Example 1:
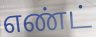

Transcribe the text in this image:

எண்ட்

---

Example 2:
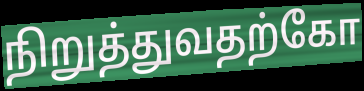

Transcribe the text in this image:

நிறுத்துவதற்கோ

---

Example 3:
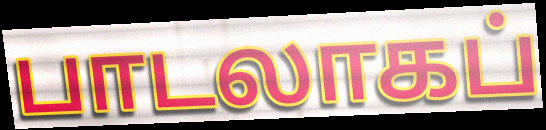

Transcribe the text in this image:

பாடலாகப்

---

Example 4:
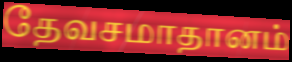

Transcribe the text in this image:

தேவசமாதானம்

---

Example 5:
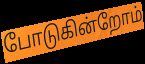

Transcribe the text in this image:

போடுகின்றோம்